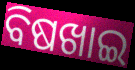
ବିଷଖାଇ